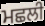
ਮਛਲੀ